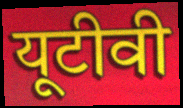
यूटीवी